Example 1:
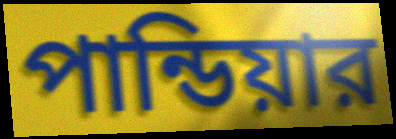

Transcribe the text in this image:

পান্ডিয়ার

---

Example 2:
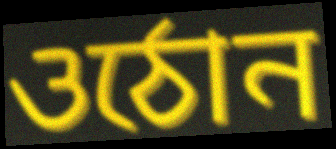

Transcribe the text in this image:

ওঠোন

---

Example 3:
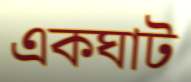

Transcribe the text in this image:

একঘাট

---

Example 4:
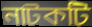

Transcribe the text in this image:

নাটকটি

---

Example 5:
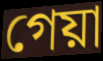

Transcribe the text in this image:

গেয়া